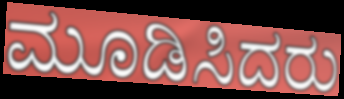
ಮೂಡಿಸಿದರು